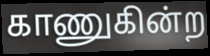
காணுகின்ற